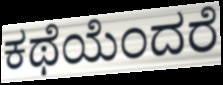
ಕಥೆಯೆಂದರೆ